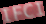
IFCI